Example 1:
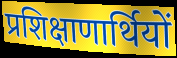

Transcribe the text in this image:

प्रशिक्षाणार्थियों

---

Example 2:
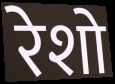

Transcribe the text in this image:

रेशो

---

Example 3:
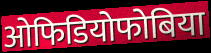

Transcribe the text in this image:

ओफिडियोफोबिया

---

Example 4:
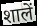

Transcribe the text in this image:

शालें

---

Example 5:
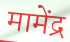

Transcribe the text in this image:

मामेंद्र